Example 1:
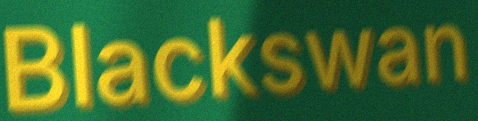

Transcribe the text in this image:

Blackswan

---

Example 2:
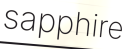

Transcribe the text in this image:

sapphire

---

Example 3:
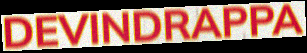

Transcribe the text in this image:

DEVINDRAPPA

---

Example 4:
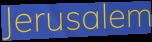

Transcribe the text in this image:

Jerusalem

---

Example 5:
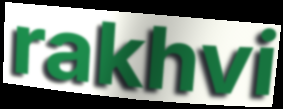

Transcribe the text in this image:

rakhvi